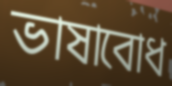
ভাষাবোধ